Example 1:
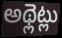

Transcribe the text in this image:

అథ్లెట్లు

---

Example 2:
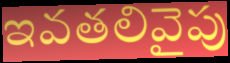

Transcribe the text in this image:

ఇవతలివైపు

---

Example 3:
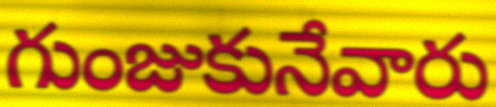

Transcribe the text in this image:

గుంజుకునేవారు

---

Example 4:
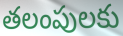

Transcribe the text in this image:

తలంపులకు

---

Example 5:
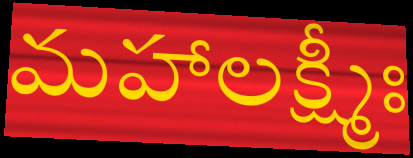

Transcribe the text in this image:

మహాలక్ష్మీః